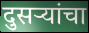
दुसऱ्यांचा